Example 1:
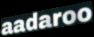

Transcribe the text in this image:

aadaroo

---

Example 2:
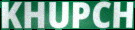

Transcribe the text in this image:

KHUPCH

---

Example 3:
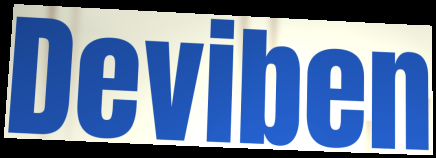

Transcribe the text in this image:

Deviben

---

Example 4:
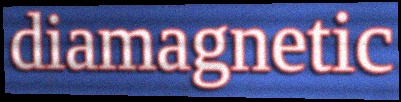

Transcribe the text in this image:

diamagnetic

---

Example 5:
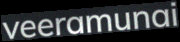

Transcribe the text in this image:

veeramunai